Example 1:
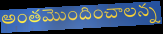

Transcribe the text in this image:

అంతమొందించాలన్న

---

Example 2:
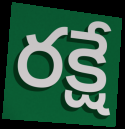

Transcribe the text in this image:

రక్షే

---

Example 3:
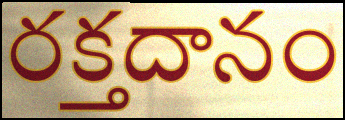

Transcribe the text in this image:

రక్తదానం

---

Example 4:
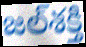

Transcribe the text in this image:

జల్‌శక్తి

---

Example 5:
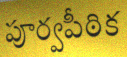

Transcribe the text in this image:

పూర్వపీఠిక